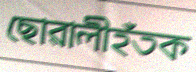
ছোৱালীহঁতক